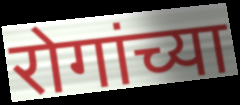
रोगांच्या